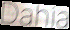
Dahia